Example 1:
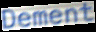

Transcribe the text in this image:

Dement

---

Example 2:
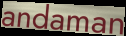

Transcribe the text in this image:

andaman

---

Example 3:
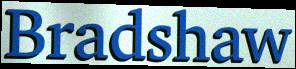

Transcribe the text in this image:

Bradshaw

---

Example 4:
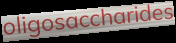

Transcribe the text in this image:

oligosaccharides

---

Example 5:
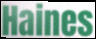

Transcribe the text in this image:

Haines